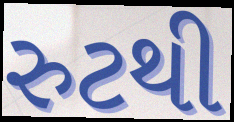
રુટથી